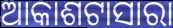
ଆକାଶଟାସାରା